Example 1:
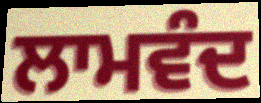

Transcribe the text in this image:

ਲਾਮਵੰਦ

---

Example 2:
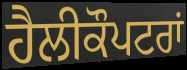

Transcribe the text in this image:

ਹੈਲੀਕੌਪਟਰਾਂ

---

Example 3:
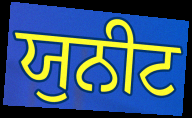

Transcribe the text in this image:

ਯੁਨੀਟ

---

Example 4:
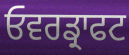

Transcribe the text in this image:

ਓਵਰਡ੍ਰਾਫਟ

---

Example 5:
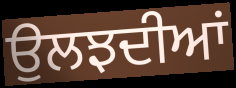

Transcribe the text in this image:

ਉਲਝਦੀਆਂ